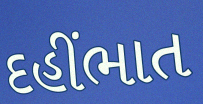
દહીંભાત